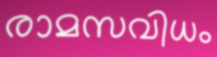
രാമസവിധം